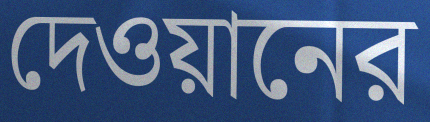
দেওয়ানের